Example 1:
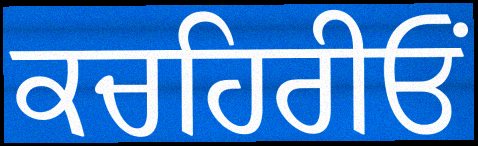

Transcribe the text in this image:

ਕਚਹਿਰੀਓਂ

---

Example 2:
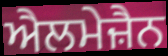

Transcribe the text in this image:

ਐਲਮੇਜ਼ੈਨ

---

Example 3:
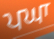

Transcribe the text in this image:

ਪਘਾ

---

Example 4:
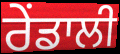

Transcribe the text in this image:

ਰੇਂਡਾਲੀ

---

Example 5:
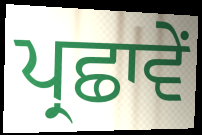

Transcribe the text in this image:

ਪ੍ਰਛਾਵੇਂ